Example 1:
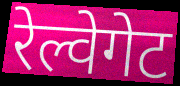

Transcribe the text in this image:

रेल्वेगेट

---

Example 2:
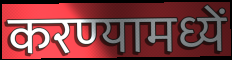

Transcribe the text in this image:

करण्यामध्यें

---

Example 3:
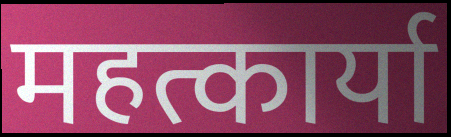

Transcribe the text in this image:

महत्कार्या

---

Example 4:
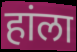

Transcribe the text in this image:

हांला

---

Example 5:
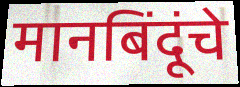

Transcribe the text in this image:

मानबिंदूंचे